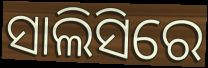
ସାଲିସିରେ